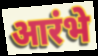
आरंभे